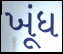
ખૂંધ